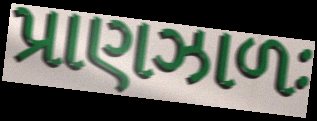
પ્રાણઝાળઃ